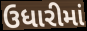
ઉધારીમાં